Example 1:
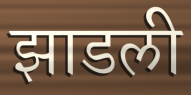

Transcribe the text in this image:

झाडली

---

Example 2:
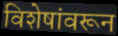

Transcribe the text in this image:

विशेषांवरून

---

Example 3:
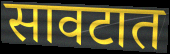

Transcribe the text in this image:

सावटात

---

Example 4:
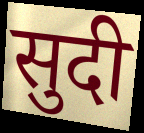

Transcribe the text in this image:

सुदी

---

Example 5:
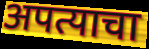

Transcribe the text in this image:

अपत्याचा